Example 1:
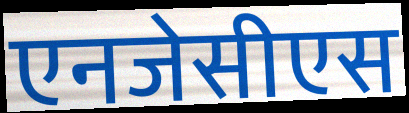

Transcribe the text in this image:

एनजेसीएस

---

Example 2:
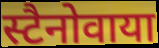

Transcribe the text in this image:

स्टैनोवाया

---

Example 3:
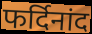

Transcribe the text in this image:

फर्दिनांद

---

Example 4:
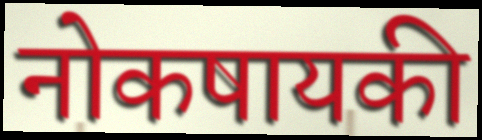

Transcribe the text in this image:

नोकषायकी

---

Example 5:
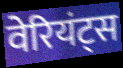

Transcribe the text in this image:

वेरियंट्स